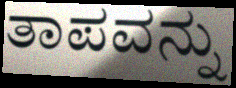
ತಾಪವನ್ನು